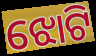
ଝୋଟି